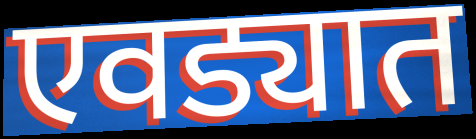
एवड्यात